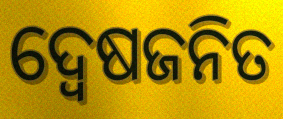
ଦ୍ଵେଷଜନିତ